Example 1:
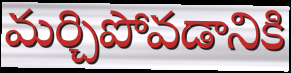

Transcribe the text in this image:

మర్చిపోవడానికి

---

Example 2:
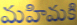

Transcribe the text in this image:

మహిమకి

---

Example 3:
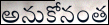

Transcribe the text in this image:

అనుకోనంత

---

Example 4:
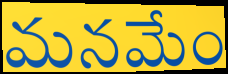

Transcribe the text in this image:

మనమేం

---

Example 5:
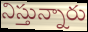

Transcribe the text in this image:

నిస్తున్నారు